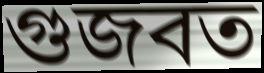
গুজবত